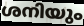
ശനിയും